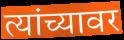
त्यांच्यावर